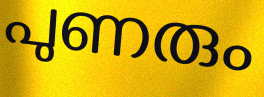
പുണരും